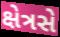
ક્ષેત્રસે